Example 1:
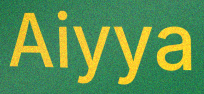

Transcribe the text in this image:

Aiyya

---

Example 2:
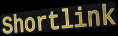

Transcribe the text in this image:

Shortlink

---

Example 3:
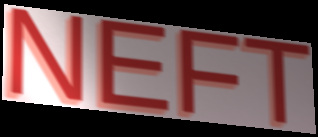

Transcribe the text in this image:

NEFT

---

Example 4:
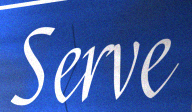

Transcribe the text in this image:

Serve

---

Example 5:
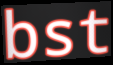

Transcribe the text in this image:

bst